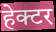
हेक्‍टर